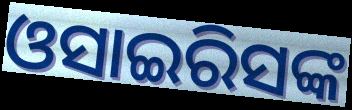
ଓସାଇରିସଙ୍କ